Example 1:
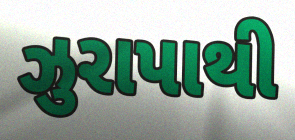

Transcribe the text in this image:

ઝુરાપાથી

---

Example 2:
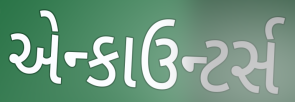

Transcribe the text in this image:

એન્કાઉન્ટર્સ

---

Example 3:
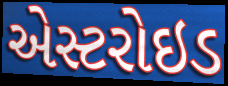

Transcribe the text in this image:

એસ્ટરોઇડ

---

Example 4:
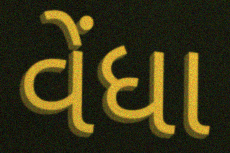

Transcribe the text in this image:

વેંધા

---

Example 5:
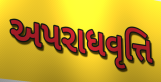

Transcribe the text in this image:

અપરાધવૃત્તિ